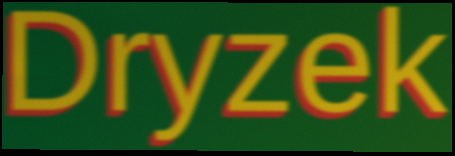
Dryzek